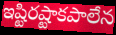
ఇష్టిరష్టాకపాలేన